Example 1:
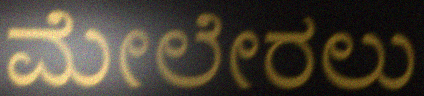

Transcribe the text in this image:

ಮೇಲೇರಲು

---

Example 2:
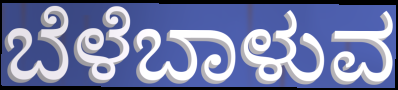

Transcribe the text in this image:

ಬೆಳೆಬಾಳುವ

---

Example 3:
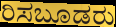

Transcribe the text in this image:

ರಿಸಬೂಡರು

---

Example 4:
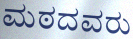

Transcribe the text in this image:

ಮಠದವರು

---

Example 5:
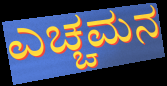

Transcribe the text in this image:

ಎಚ್ಚಮನ